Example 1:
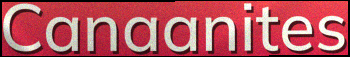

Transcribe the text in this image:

Canaanites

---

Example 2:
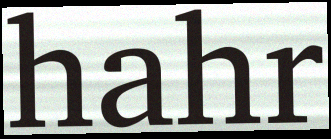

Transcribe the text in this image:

hahr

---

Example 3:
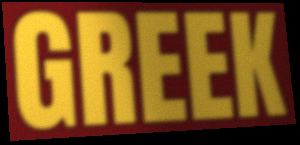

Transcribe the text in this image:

GREEK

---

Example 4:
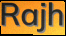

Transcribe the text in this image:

Rajh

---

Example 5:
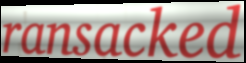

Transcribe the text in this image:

ransacked